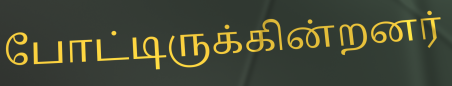
போட்டிருக்கின்றனர்